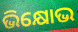
ଭିକ୍ଷୋଭ